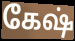
கேஷ்